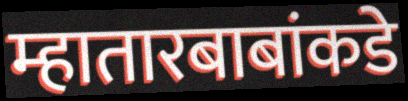
म्हातारबाबांकडे